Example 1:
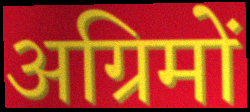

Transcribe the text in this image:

अग्रिमों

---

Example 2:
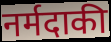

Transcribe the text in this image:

नर्मदाकी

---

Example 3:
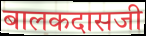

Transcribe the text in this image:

बालकदासजी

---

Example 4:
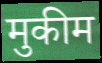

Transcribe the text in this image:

मुकीम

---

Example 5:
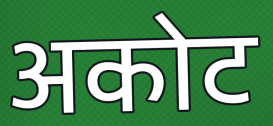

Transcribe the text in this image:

अकोट